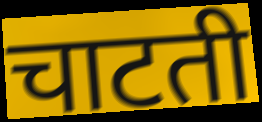
चाटती